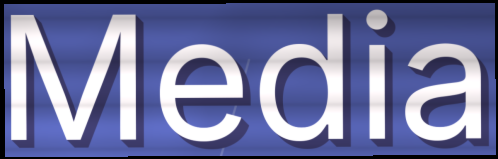
Media